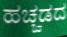
ಹಚ್ಚಡದ